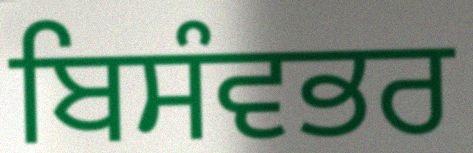
ਬਿਸੰਵਭਰ